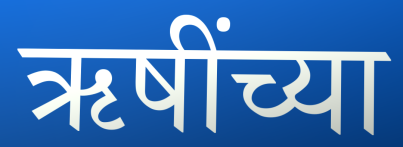
ऋषींच्या